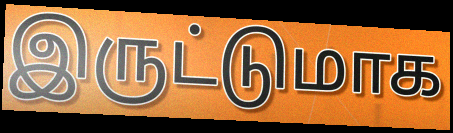
இருட்டுமாக